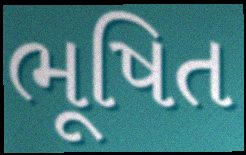
ભૂષિત